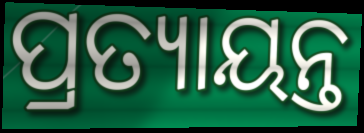
ପ୍ରତ୍ୟାୟନ୍ତ